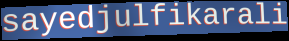
sayedjulfikarali